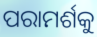
ପରାମର୍ଶକୁ